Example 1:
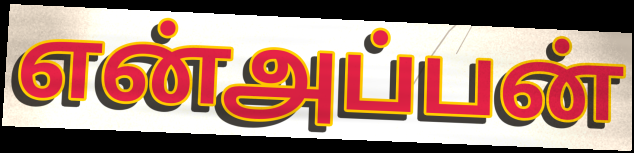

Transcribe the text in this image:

என்அப்பன்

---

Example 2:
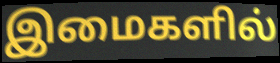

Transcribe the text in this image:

இமைகளில்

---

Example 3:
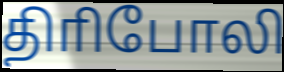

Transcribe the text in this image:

திரிபோலி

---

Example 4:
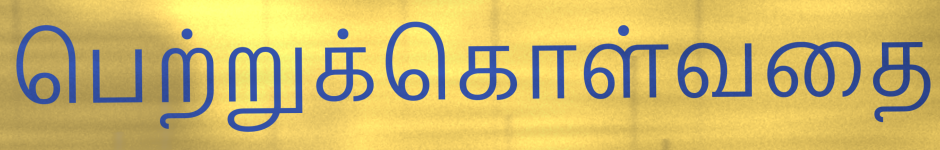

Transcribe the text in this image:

பெற்றுக்கொள்வதை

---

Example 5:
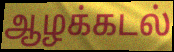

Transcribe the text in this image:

ஆழக்கடல்